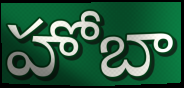
హోబా